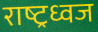
राष्ट्रध्वज